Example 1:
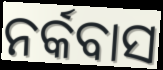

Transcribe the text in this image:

ନର୍କବାସ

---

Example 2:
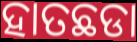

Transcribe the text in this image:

ହାତଛଡା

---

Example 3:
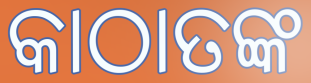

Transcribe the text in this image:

କାଠାତଙ୍କ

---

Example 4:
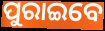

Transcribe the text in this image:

ପୁରାଇବେ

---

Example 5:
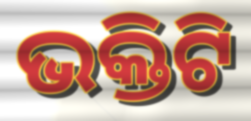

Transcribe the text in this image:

ଭକ୍ତିଟି